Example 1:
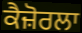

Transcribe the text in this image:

ਕੈਜ਼ੋਰਲਾ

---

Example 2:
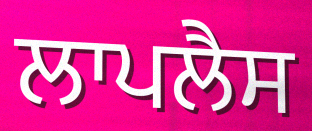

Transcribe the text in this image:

ਲਾਪਲੈਸ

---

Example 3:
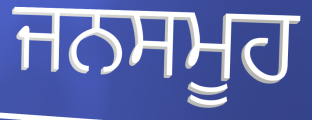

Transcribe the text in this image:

ਜਨਸਮੂਹ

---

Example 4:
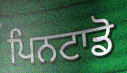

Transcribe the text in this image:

ਪਿਨਟਾਡੋ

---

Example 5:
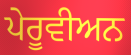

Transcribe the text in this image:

ਪੇਰੂਵੀਅਨ